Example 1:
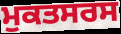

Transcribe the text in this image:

ਮੁਕਤਸਰਸ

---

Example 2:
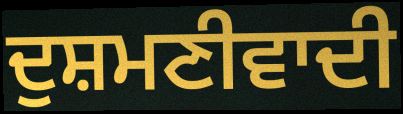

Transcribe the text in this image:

ਦੁਸ਼ਮਣੀਵਾਦੀ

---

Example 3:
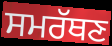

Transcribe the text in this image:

ਸਮਰੱਥਣ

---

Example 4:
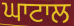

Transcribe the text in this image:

ਘਾਟਾਲ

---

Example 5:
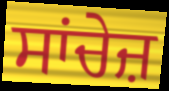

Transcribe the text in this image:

ਸਾਂਚੇਜ਼